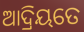
ଆଦ୍ରିୟତେ